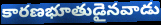
కారణభూతుడైనవాడు